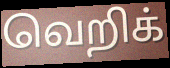
வெறிக்